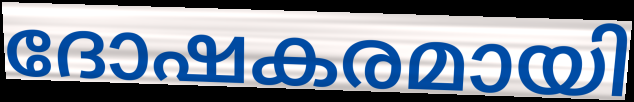
ദോഷകരമായി